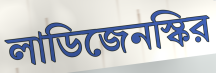
লাডিজেনস্কির